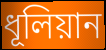
ধূলিয়ান